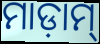
ମାଡ଼ାମ୍